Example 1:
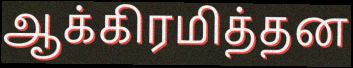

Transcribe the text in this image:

ஆக்கிரமித்தன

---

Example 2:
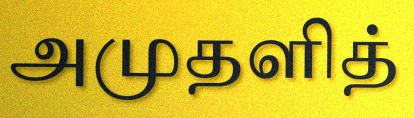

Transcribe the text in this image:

அமுதளித்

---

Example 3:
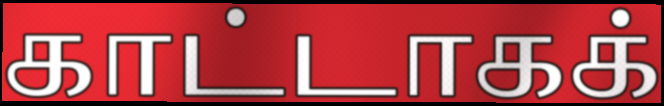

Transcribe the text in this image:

காட்டாகக்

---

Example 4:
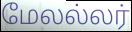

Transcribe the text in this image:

மேலல்லர்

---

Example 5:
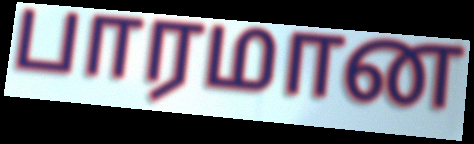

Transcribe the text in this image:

பாரமான